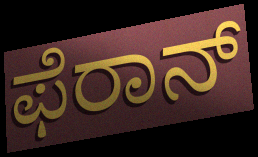
ಫೆರಾನ್